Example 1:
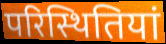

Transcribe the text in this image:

परिस्थितियां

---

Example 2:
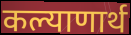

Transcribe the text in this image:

कल्याणार्थ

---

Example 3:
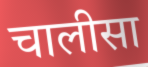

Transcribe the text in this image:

चालीसा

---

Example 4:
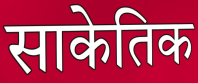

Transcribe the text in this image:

साकेतिक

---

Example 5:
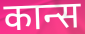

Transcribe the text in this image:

कान्स